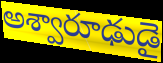
అశ్వారూఢుడై